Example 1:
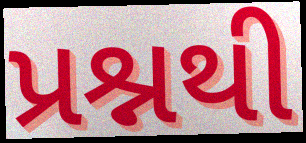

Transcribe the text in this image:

પ્રશ્નથી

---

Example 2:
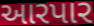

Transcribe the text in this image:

આરપાર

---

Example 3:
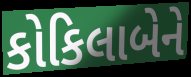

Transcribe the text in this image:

કોકિલાબેને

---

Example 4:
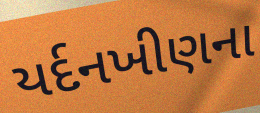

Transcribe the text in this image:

યર્દનખીણના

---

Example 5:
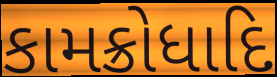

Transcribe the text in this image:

કામક્રોધાદિ